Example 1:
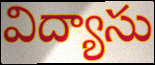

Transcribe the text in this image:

విద్యాసు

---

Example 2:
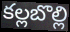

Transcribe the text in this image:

కల్లబొల్లి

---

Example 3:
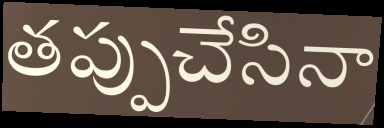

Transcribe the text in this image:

తప్పుచేసినా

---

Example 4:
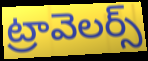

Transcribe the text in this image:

ట్రావెలర్స్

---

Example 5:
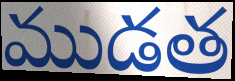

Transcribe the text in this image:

ముడత